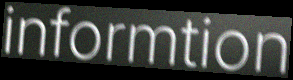
informtion